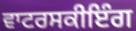
ਵਾਟਰਸਕੀਇੰਗ